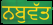
ਨਬੁਵੱਤ